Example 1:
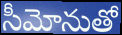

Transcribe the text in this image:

సీమోనుతో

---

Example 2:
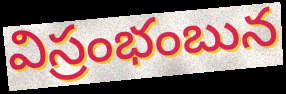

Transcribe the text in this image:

విస్రంభంబున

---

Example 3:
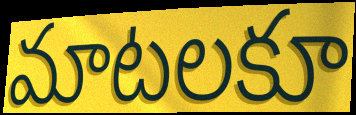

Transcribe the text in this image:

మాటలకూ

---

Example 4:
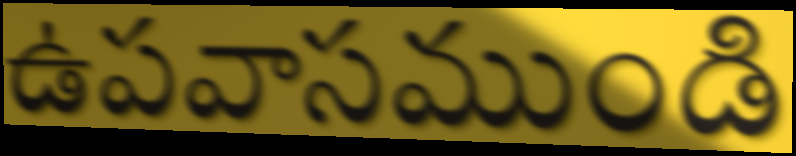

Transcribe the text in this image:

ఉపవాసముండి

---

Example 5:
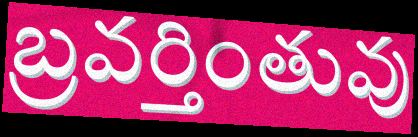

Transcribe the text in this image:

బ్రవర్తింతువు